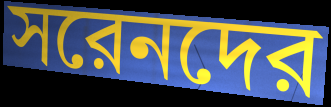
সরেনদের